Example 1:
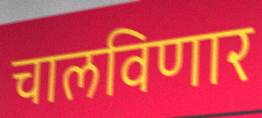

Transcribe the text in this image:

चालविणार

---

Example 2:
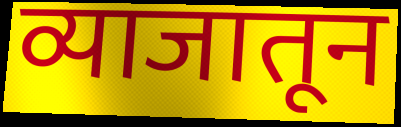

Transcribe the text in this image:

व्याजातून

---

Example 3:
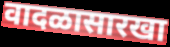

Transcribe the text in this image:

वादळासारखा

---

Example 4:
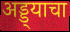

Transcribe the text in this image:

अड्ड्याचा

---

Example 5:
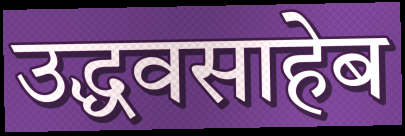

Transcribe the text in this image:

उद्धवसाहेब